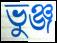
ভুঞ্জ